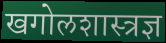
खगोलशास्त्रज्ञ